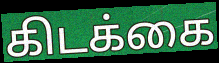
கிடக்கை